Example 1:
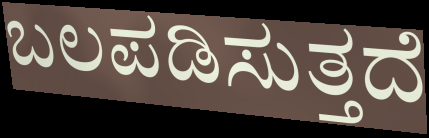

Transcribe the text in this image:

ಬಲಪಡಿಸುತ್ತದೆ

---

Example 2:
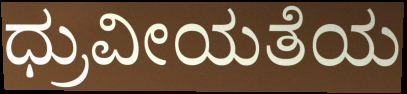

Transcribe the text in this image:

ಧ್ರುವೀಯತೆಯ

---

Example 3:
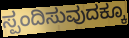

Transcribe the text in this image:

ಸ್ಪಂದಿಸುವುದಕ್ಕೂ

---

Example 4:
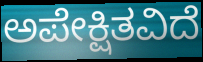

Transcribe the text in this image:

ಅಪೇಕ್ಷಿತವಿದೆ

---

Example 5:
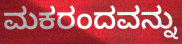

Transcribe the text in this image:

ಮಕರಂದವನ್ನು